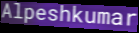
Alpeshkumar